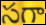
సగా